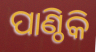
ପାଣ୍ଠିକି